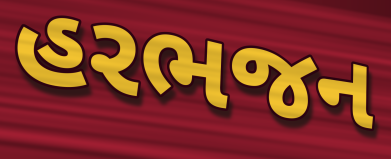
હરભજન